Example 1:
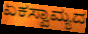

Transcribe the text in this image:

ಏಕಸ್ವಾಮ್ಯದ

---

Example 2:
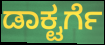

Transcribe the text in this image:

ಡಾಕ್ಟರ್ಗೆ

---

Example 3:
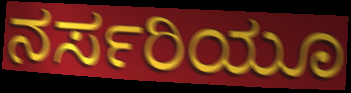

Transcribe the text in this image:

ನರ್ಸರಿಯೂ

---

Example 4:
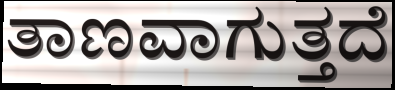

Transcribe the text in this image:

ತಾಣವಾಗುತ್ತದೆ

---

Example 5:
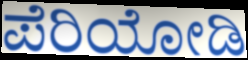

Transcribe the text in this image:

ಪೆರಿಯೋಡಿ